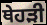
ਥੇਹੜੀ